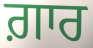
ਗ਼ਾਰ